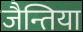
जैन्तिया